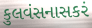
કુલવંસનાસકરં